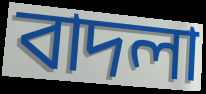
বাদলা